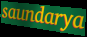
saundarya